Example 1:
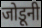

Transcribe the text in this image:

जोडूनी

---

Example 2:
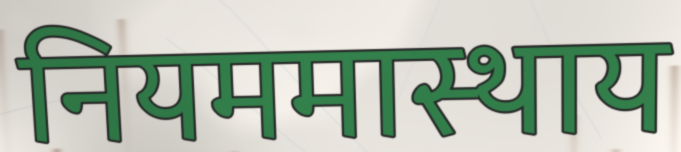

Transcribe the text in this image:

नियममास्थाय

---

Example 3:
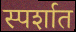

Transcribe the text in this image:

स्पर्शात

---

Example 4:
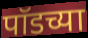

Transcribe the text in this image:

पॉडच्या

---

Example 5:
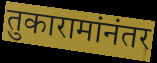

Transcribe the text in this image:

तुकारामांनंतर